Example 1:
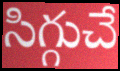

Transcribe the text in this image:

సిగ్గుచే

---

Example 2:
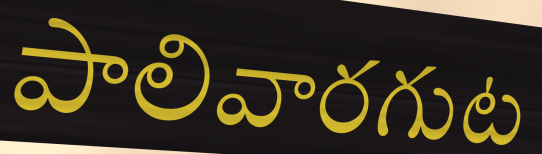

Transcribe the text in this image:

పాలివారగుట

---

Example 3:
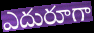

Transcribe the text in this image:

ఎదురూగా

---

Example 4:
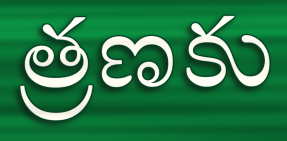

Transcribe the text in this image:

త్రణకు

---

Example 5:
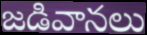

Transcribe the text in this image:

జడివానలు